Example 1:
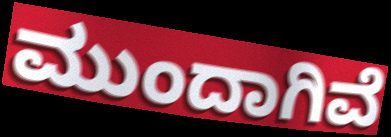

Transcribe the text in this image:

ಮುಂದಾಗಿವೆ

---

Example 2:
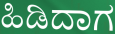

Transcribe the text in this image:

ಹಿಡಿದಾಗ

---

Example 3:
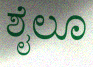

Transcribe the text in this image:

ಶೈಲೂ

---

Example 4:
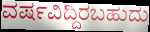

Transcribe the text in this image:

ವರ್ಷವಿದ್ದಿರಬಹುದು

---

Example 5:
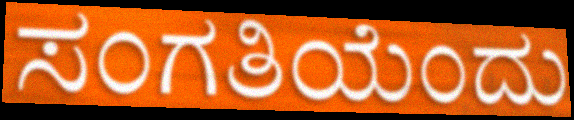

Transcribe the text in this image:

ಸಂಗತಿಯೆಂದು